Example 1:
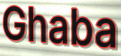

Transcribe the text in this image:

Ghaba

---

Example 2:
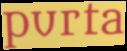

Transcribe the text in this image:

purta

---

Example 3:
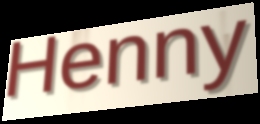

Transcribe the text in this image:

Henny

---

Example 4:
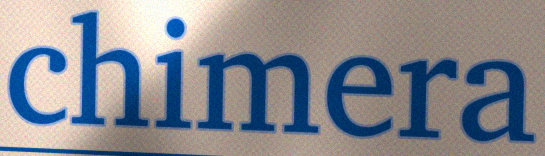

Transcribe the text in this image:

chimera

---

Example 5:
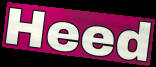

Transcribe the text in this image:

Heed